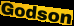
Godson